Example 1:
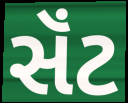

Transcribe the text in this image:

સૅંટ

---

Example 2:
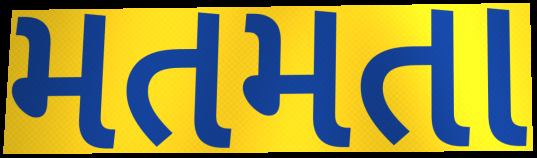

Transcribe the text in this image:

મતમતા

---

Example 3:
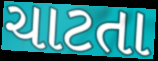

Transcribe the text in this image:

ચાટતા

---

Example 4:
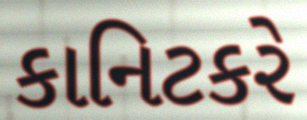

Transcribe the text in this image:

કાનિટકરે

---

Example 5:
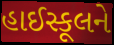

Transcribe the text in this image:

હાઈસ્કૂલને